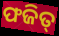
ଫଜିତ୍